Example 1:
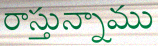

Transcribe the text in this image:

రాస్తున్నాము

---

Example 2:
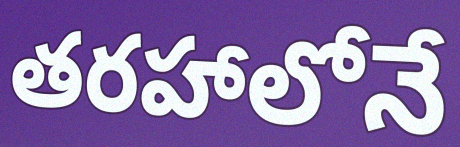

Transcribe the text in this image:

తరహాలోనే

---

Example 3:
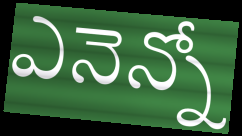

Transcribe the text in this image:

ఎనెన్నో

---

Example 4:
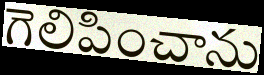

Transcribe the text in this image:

గెలిపించాను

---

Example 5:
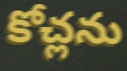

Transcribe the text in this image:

కోచ్లను